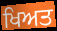
ਖਿਅਤ